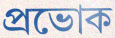
প্রভোক